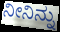
ನೀನಿನ್ನು